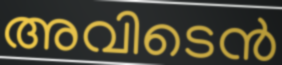
അവിടെൻ